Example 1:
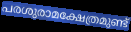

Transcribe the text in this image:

പരശുരാമക്ഷേത്രമുണ്ട്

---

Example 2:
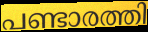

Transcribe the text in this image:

പണ്ടാരത്തി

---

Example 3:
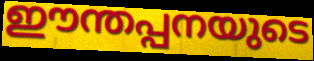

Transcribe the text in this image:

ഈന്തപ്പനയുടെ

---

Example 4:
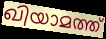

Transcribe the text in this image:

ഖിയാമത്ത്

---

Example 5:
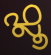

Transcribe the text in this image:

ഫ്ലൂ